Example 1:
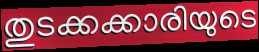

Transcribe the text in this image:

തുടക്കക്കാരിയുടെ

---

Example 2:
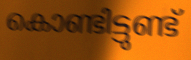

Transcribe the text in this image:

കൊണ്ടിട്ടുണ്ട്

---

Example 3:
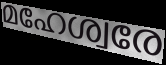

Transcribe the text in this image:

മഹേശ്വരേ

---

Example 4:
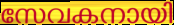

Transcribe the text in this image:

സേവകനായി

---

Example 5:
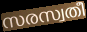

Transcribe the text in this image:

സരസ്വതീ